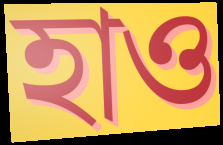
হাও